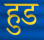
हुड